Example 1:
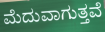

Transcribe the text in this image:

ಮೆದುವಾಗುತ್ತವೆ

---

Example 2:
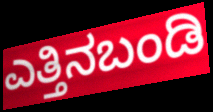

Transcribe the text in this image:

ಎತ್ತಿನಬಂಡಿ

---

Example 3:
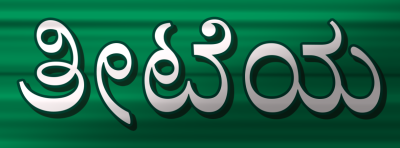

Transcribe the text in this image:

ತೀಟೆಯ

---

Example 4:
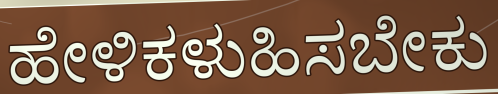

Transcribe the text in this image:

ಹೇಳಿಕಳುಹಿಸಬೇಕು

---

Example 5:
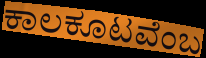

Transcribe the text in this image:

ಕಾಲಕೂಟವೆಂಬ